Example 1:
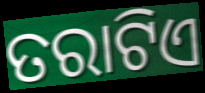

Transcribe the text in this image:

ତରାଟିଏ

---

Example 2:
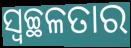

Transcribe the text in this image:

ସ୍ଵଚ୍ଛଳତାର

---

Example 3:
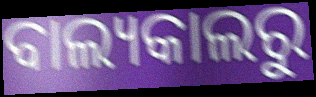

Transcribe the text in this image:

ବାଲ୍ୟକାଲରୁ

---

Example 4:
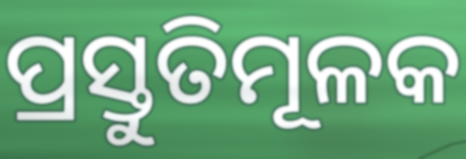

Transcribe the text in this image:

ପ୍ରସ୍ତୁତିମୂଳକ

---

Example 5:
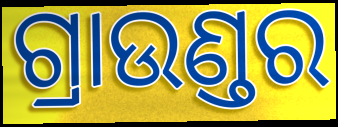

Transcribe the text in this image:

ଗ୍ରାଉଣ୍ଡର